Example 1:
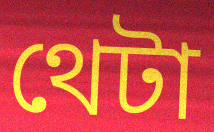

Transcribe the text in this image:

থেটা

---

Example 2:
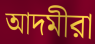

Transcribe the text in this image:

আদমীরা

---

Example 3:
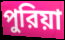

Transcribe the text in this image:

পুরিয়া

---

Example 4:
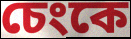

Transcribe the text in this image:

চেংকে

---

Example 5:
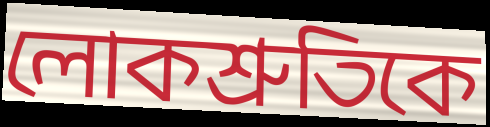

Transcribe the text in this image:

লোকশ্রুতিকে